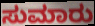
ಸುಮಾರು